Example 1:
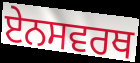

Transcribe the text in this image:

ਏਨਸਵਰਥ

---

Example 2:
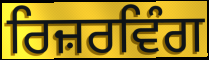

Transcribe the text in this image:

ਰਿਜ਼ਰਵਿੰਗ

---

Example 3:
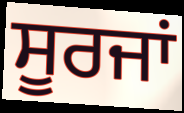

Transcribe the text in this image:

ਸੂਰਜਾਂ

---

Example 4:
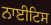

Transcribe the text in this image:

ਨਾਈਟਿਸ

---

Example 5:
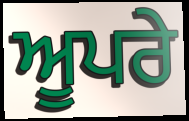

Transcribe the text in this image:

ਅੂਪਰੇ